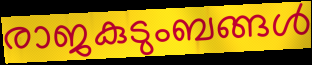
രാജകുടുംബങ്ങൾ